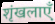
शृंखलाएँ